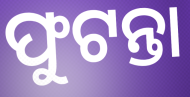
ଫୁଟନ୍ତା